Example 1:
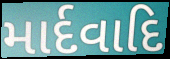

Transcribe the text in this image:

માર્દવાદિ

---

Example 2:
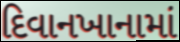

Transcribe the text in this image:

દિવાનખાનામાં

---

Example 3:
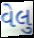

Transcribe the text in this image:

વેલુ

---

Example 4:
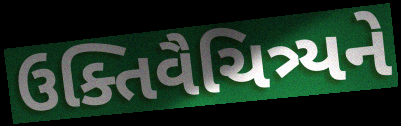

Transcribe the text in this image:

ઉક્તિવૈચિત્ર્યને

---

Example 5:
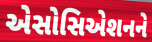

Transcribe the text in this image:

એસોસિએશનને